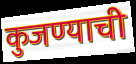
कुजण्याची